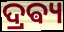
ଦ୍ରଵ୍ୟ